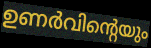
ഉണർവിന്റെയും